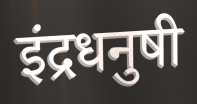
इंद्रधनुषी